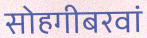
सोहगीबरवां